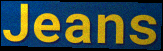
Jeans